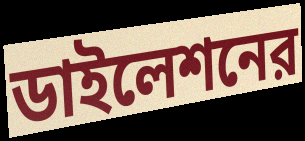
ডাইলেশনের